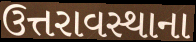
ઉત્તરાવસ્થાના